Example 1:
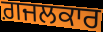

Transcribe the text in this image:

ਗ਼ਜਲਕਾਰ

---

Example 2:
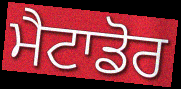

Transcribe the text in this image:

ਮੈਟਾਡੋਰ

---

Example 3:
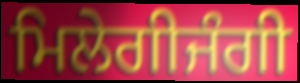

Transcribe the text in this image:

ਮਿਲੇਗੀਜੰਗੀ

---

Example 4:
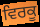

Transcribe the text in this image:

ਵਿਰਕੂ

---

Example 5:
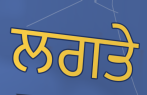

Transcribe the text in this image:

ਲਗਤੇ